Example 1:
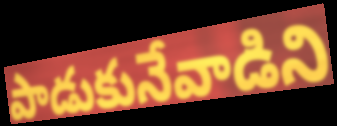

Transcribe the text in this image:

పాడుకునేవాడిని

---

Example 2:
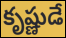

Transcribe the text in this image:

కృష్ణుడే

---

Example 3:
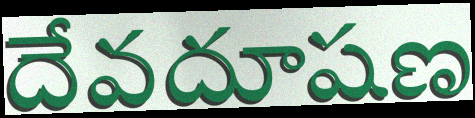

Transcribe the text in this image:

దేవదూషణ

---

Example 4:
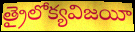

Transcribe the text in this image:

త్రైలోక్యవిజయీ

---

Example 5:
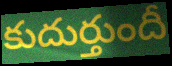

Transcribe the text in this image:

కుదుర్తుందీ